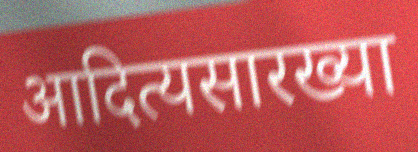
आदित्यसारख्या